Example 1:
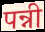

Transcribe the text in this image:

पन्नी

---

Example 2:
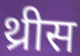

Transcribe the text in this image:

थ्रीस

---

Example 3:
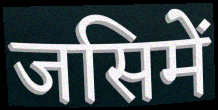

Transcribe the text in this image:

जसिमें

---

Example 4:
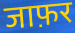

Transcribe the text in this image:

जाफ़र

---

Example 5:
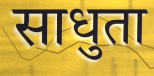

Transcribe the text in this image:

साधुता